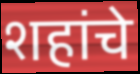
शहांचे